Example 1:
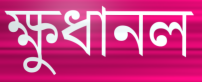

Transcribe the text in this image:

ক্ষুধানল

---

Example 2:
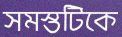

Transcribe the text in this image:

সমস্তটিকে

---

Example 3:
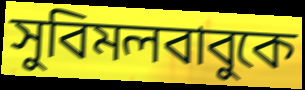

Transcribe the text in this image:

সুবিমলবাবুকে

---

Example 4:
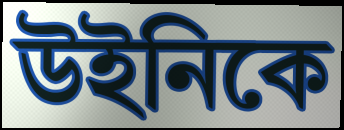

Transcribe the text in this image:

উইনিকে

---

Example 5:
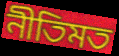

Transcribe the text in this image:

নীতিমত